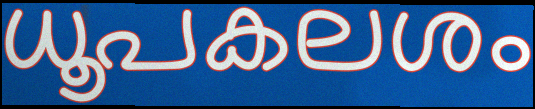
ധൂപകലശം